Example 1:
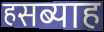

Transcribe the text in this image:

हसब्याह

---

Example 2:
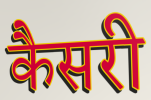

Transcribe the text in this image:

कैसरी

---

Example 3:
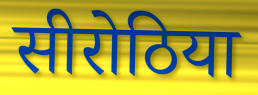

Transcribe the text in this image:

सीरोठिया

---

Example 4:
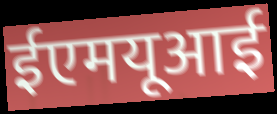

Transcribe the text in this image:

ईएमयूआई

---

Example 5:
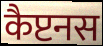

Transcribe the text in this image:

कैप्टनस